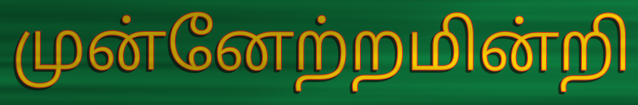
முன்னேற்றமின்றி